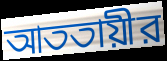
আততায়ীর